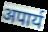
अपार्य